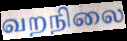
வறநிலை